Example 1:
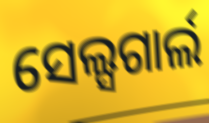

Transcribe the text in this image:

ସେଲ୍ସଗାର୍ଲ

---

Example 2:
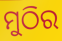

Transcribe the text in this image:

ମୁଠିର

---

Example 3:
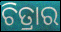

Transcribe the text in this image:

ଚିତ୍ରାର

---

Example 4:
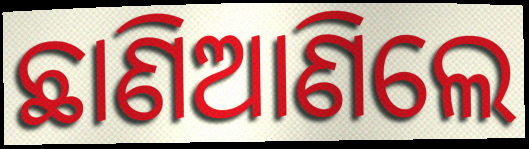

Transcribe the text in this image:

ଛାଣିଆଣିଲେ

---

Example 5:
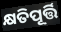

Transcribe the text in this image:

କ୍ଷତିପୂର୍ତ୍ତି